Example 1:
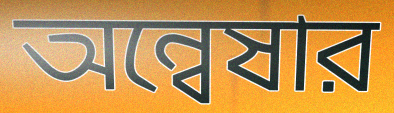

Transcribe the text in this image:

অন্বেষার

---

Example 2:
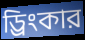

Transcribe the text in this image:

ড্রিংকার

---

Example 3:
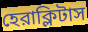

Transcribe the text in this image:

হেরাক্লিটাস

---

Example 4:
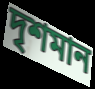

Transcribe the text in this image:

দৃশমান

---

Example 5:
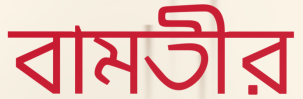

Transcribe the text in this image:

বামতীর